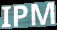
IPM